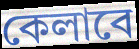
কেলাবে